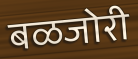
बळजोरी